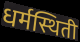
धर्मस्थिती